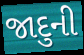
જાદુની